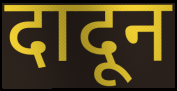
दादून